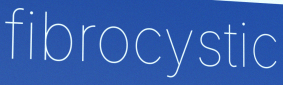
fibrocystic